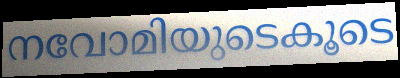
നവോമിയുടെകൂടെ